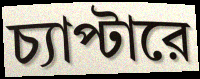
চ্যাপ্টারে